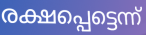
രക്ഷപ്പെട്ടെന്ന്